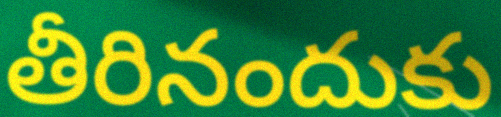
తీరినందుకు